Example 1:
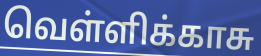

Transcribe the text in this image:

வெள்ளிக்காசு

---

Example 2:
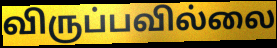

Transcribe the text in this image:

விருப்பவில்லை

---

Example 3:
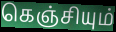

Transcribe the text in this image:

கெஞ்சியும்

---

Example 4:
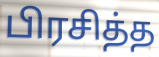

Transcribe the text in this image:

பிரசித்த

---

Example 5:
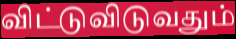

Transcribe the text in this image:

விட்டுவிடுவதும்